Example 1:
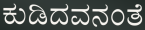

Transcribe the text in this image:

ಕುಡಿದವನಂತೆ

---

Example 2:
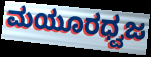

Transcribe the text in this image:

ಮಯೂರಧ್ವಜ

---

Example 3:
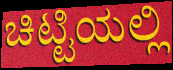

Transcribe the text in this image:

ಚಿಟ್ಟಿಯಲ್ಲಿ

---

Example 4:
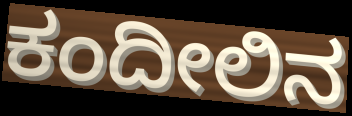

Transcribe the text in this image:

ಕಂದೀಲಿನ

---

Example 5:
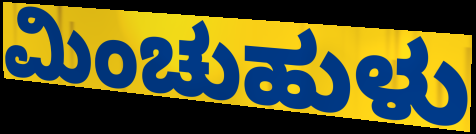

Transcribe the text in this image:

ಮಿಂಚುಹುಳು